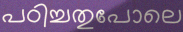
പഠിച്ചതുപോലെ